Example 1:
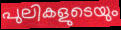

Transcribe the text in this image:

പുലികളുടെയും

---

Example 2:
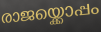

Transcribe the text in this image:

രാജയ്ക്കൊപ്പം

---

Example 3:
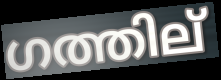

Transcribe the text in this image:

ഗത്തില്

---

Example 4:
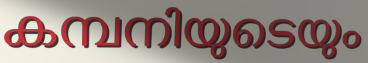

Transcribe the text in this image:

കമ്പനിയുടെയും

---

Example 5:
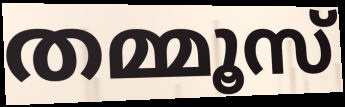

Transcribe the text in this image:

തമ്മൂസ്